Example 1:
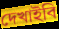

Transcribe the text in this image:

দেখাইবি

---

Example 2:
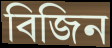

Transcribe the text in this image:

বিজিন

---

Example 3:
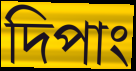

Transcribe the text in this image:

দিপাং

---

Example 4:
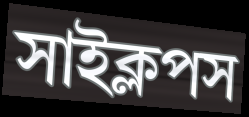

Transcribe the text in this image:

সাইক্লপস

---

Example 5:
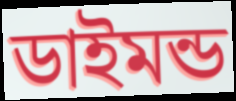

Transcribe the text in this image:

ডাইমন্ড